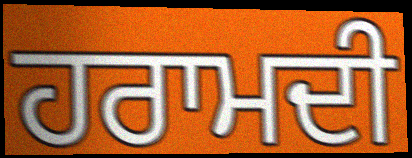
ਹਰਾਮਦੀ